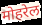
मोहरेल